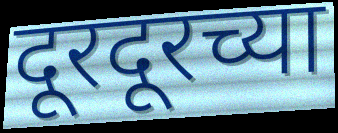
दूरदूरच्या